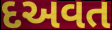
દઅવત